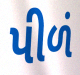
પીળં